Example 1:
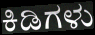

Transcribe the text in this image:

ಕಿಡಿಗಳು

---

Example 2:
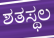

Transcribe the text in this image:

ಶತಸ್ಥಲ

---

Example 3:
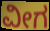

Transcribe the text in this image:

ವೀಗ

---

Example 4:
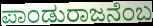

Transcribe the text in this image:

ಪಾಂಡುರಾಜನೆಂಬ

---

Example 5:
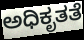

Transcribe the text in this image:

ಅಧಿಕೃತತೆ